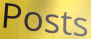
Posts